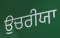
ਉਚਰੀਯਾ